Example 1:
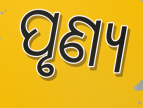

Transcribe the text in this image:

ପୃଣ୍ୟ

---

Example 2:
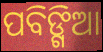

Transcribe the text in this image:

ପବିଙ୍ଗିଆ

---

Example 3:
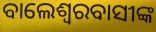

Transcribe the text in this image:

ବାଲେଶ୍ବରବାସୀଙ୍କ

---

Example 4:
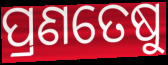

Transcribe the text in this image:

ପ୍ରଣତେଷୁ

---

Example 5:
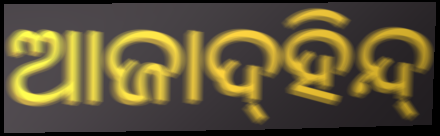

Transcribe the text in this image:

ଆଜାଦ୍‍ହିନ୍ଦ୍